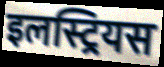
इलस्ट्रियस